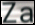
Za